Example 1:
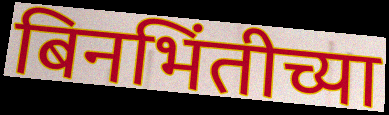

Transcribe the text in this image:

बिनभिंतीच्या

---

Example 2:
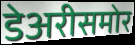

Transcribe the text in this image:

डेअरीसमोर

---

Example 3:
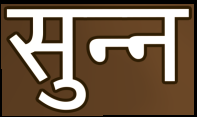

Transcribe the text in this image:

सुन्न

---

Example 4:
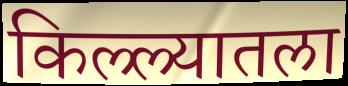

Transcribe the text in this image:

किल्ल्यातला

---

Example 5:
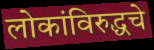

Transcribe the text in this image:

लोकांविरुद्धचे